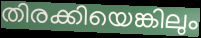
തിരക്കിയെങ്കിലും